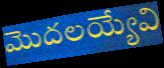
మొదలయ్యేవి